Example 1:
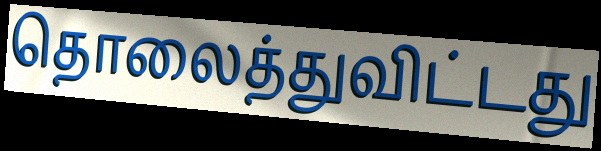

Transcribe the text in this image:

தொலைத்துவிட்டது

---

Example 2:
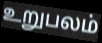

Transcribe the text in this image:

உறுபலம்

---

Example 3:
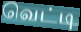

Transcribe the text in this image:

வெட்டி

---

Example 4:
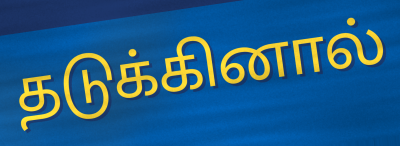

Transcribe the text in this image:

தடுக்கினால்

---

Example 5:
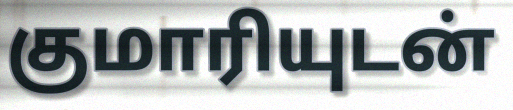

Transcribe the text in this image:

குமாரியுடன்